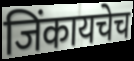
जिंकायचेच